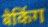
बैकिंग